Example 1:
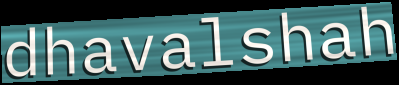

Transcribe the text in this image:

dhavalshah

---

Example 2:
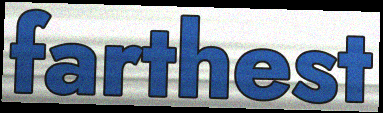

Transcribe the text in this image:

farthest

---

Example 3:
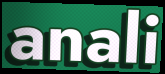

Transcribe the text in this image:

anali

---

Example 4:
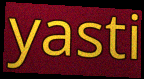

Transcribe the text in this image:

yasti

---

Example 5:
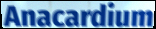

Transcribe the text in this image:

Anacardium